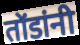
तोंडांनी